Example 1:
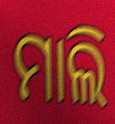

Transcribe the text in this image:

ମାଲି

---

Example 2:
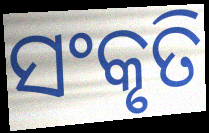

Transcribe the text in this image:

ସଂକୃତି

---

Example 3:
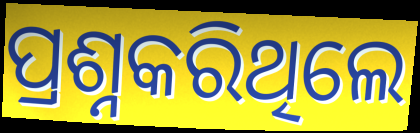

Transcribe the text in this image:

ପ୍ରଶ୍ନକରିଥିଲେ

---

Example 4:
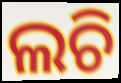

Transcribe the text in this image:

ଲଚି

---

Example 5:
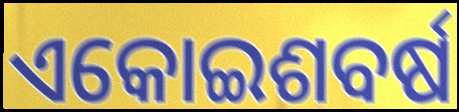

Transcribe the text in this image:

ଏକୋଇଶବର୍ଷ